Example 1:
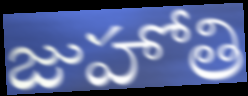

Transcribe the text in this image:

జుహోతి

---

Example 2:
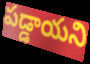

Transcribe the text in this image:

పడ్డాయని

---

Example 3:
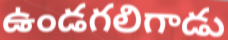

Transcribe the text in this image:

ఉండగలిగాడు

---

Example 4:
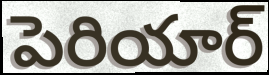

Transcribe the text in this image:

పెరియార్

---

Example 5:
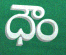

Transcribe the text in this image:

ధౌం